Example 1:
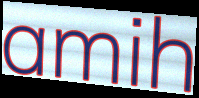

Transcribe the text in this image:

amih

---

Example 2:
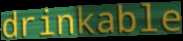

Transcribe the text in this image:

drinkable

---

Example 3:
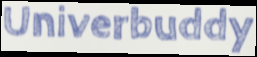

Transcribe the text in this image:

Univerbuddy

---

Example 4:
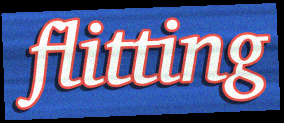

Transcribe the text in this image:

flitting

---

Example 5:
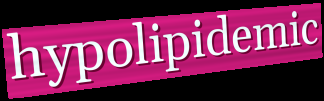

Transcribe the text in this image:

hypolipidemic